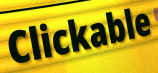
Clickable